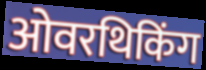
ओवरथिकिंग